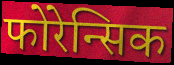
फोरेन्सिक